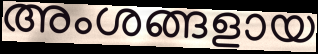
അംശങ്ങളായ